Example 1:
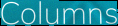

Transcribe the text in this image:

Columns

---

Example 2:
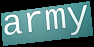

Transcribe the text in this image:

army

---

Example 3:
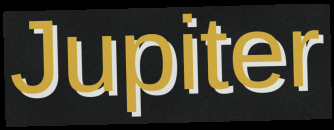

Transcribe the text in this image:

Jupiter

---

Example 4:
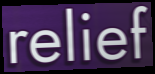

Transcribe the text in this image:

relief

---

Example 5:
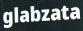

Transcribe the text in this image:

glabzata